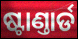
ଷ୍ଟାଣ୍ତାର୍ଡ